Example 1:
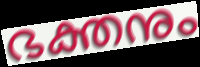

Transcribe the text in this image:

ഭക്തനും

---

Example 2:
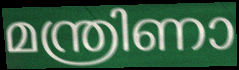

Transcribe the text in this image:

മന്ത്രിണാ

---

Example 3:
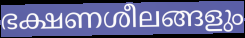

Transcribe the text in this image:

ഭക്ഷണശീലങ്ങളും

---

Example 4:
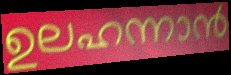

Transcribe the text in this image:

ഉലഹന്നാൻ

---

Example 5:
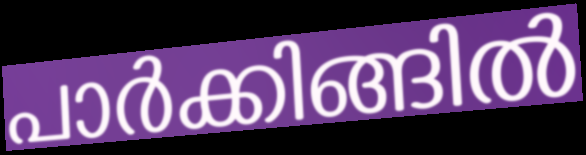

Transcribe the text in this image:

പാർക്കിങ്ങിൽ